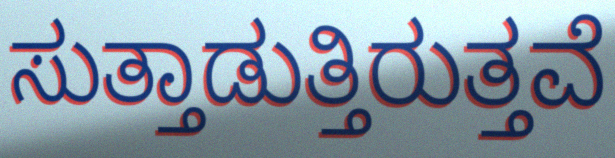
ಸುತ್ತಾಡುತ್ತಿರುತ್ತವೆ